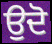
ਉਦੋ